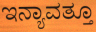
ಇನ್ಯಾವತ್ತೂ